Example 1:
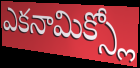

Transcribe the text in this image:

ఎకనామిక్స్లో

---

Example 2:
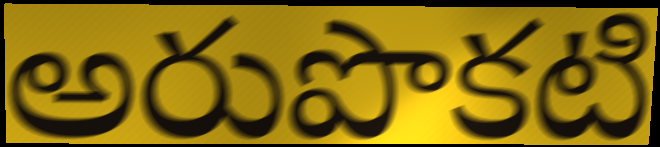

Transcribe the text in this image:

అరుపొకటి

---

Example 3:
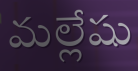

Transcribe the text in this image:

మల్లేషు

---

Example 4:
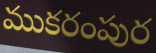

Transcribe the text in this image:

ముకరంపుర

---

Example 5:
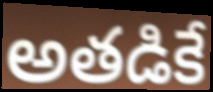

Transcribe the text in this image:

అతడికే